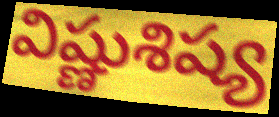
విష్ణుశిష్య